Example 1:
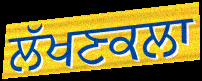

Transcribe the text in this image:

ਲੱਖਣਕਲਾ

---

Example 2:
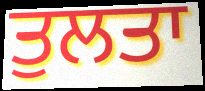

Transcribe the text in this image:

ਤੁਲਤਾ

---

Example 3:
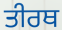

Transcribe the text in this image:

ਤੀਰਥ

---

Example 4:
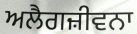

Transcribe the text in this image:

ਅਲੈਗਜ਼ੀਵਨਾ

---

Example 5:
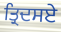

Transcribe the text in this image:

ਤ੍ਰਿਦਸਏ